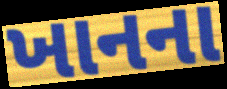
ખાનના